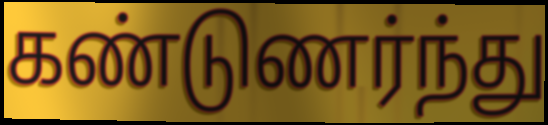
கண்டுணர்ந்து